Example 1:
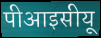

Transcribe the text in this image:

पीआइसीयू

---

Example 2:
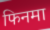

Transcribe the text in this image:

फिनमा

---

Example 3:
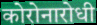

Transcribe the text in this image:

कोरोनारोधी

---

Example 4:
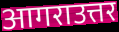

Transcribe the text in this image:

आगराउत्तर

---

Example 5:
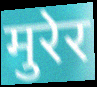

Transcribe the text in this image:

मुरेर